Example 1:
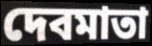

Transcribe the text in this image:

দেবমাতা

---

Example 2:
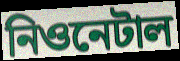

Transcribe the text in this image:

নিওনেটাল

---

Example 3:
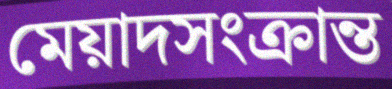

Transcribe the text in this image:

মেয়াদসংক্রান্ত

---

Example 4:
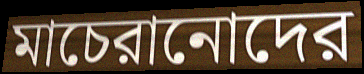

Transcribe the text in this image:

মাচেরানোদের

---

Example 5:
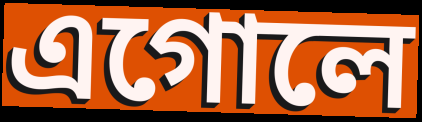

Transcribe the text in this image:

এগোলে